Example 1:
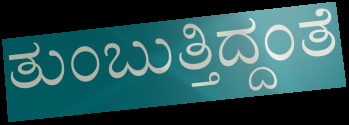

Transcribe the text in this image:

ತುಂಬುತ್ತಿದ್ದಂತೆ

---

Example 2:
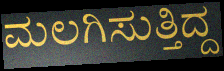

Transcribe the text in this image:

ಮಲಗಿಸುತ್ತಿದ್ದ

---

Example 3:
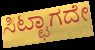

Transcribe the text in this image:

ಸಿಟ್ಟಾಗದೇ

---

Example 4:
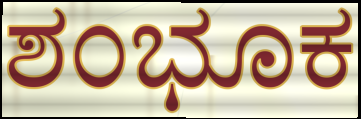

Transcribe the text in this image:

ಶಂಭೂಕ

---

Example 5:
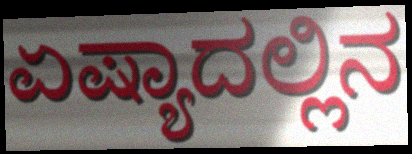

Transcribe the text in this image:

ಏಷ್ಯಾದಲ್ಲಿನ